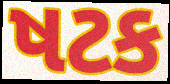
ષટક